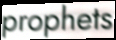
prophets